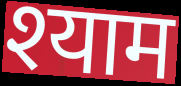
श्‍याम